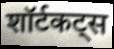
शॉर्टकट्स